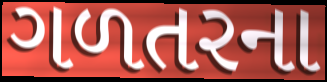
ગળતરના